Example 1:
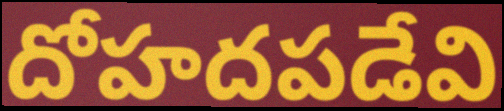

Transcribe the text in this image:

దోహదపడేవి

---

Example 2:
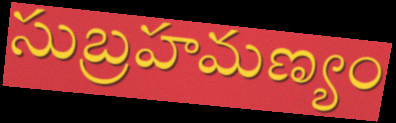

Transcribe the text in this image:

సుబ్రహమణ్యం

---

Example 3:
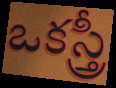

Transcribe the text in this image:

ఒకస్త్రీ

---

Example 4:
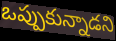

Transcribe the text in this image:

ఒప్పుకున్నాడని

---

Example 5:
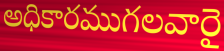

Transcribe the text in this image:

అధికారముగలవారై